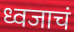
ध्वजाचं